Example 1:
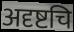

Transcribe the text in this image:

अदृष्टचि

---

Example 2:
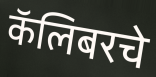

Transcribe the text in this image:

कॅलिबरचे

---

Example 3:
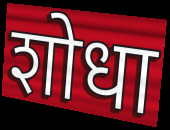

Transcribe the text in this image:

शोधा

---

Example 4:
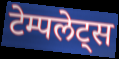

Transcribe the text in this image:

टेम्पलेट्स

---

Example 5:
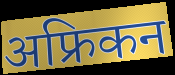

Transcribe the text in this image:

अफ्रिकन